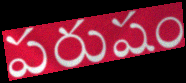
పరుషం